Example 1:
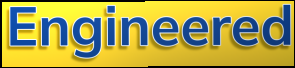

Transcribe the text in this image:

Engineered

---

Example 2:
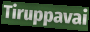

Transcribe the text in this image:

Tiruppavai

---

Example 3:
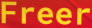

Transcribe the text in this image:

Freer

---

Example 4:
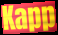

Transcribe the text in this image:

Kapp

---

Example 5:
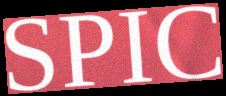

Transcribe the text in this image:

SPIC